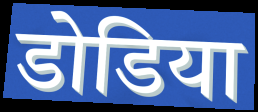
डोडिया